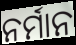
ନର୍ମାନ